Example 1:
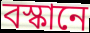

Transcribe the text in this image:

বস্কানে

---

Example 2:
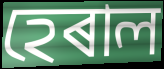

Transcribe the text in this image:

হেৰাল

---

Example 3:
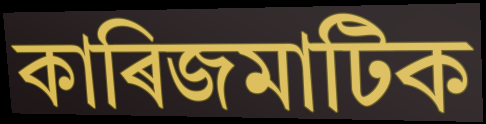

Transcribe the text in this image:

কাৰিজমাটিক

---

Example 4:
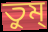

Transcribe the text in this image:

তুম্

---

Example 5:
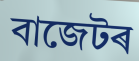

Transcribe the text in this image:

বাজেটৰ